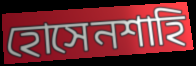
হোসেনশাহি